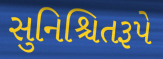
સુનિશ્ચિતરૂપે